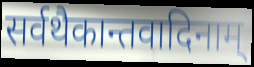
सर्वथैकान्तवादिनाम्